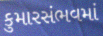
કુમારસંભવમાં